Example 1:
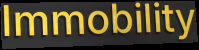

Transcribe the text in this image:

Immobility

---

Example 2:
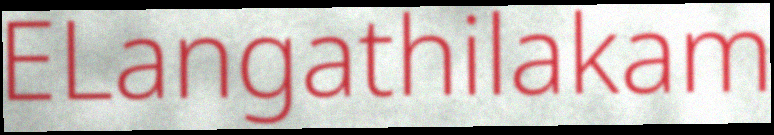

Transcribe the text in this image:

ELangathilakam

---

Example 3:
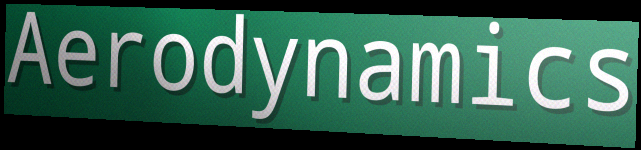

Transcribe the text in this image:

Aerodynamics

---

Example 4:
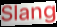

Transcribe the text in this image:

Slang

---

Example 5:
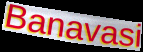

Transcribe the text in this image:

Banavasi